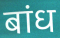
बांध